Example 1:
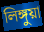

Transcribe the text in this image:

লিঙ্গুয়া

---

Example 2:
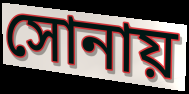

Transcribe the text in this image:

সোনায়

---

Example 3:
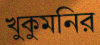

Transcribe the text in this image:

খুকুমনির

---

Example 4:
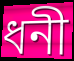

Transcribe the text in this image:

ধনী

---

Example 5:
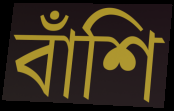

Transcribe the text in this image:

বাঁশি